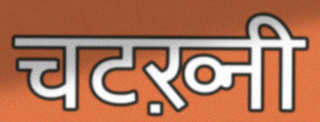
चटख़्नी